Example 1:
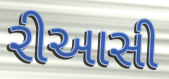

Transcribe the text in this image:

રીઆસી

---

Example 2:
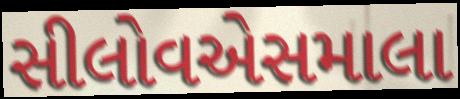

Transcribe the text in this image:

સીલોવએસમાલા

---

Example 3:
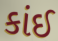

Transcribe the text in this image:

કાંઈ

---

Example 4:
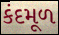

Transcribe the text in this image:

કંદમૂળ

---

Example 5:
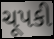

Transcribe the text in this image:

ચૂપકી